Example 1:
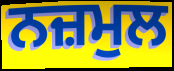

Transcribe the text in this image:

ਨਜ਼ਮੁਲ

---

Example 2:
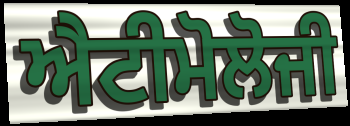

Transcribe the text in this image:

ਐਟੀਮੋਲੋਜੀ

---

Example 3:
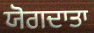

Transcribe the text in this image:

ਯੋਗਦਾਤਾ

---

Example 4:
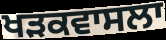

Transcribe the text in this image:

ਖੜਕਵਾਸਲਾ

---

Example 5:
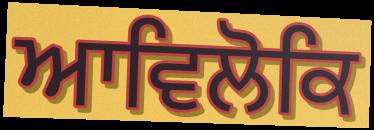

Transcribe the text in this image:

ਆਵਿਲੋਕਿ